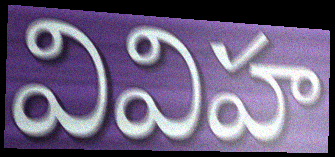
వివిహ